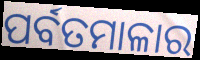
ପର୍ବତମାଳାର